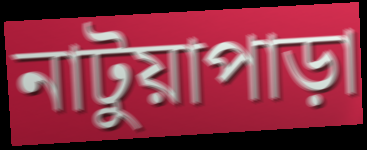
নাটুয়াপাড়া